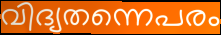
വിദ്യതന്നെപരം